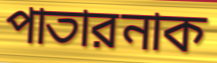
পাতারনাক